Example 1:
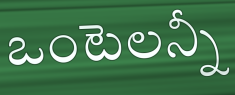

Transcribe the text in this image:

ఒంటెలన్నీ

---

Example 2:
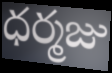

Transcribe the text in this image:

ధర్మజు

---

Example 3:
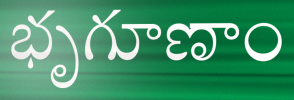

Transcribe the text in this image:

భృగూణాం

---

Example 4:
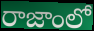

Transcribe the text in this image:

రాజాంలో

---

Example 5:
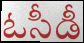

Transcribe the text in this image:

ఓసీడీ